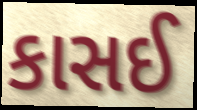
કાસઈ